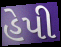
હેપી